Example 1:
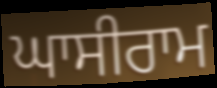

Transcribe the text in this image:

ਘਾਸੀਰਾਮ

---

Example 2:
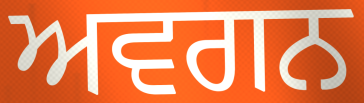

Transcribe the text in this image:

ਅਵਗਨ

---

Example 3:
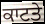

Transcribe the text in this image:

ਕਾਟਤੇ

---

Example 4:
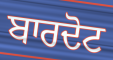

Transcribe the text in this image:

ਬਾਰਦੋਟ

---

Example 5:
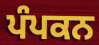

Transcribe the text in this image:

ਪੰਪਕਨ